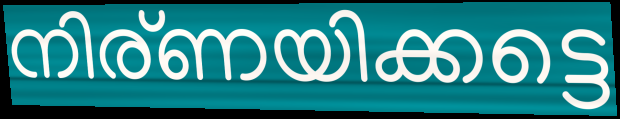
നിര്ണയിക്കട്ടെ